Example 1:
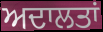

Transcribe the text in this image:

ਅਦਾਲਤਾਂ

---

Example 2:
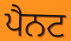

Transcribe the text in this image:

ਪੈਨਟ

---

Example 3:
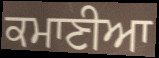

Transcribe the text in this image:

ਕਮਾਣੀਆ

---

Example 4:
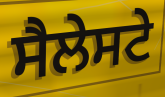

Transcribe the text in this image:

ਸੈਲੇਸਟੇ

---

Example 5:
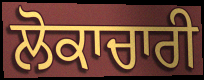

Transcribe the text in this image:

ਲੋਕਾਚਾਰੀ